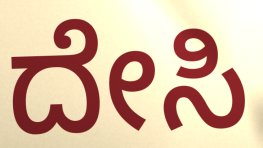
ದೇಸಿ